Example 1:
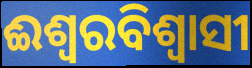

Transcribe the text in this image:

ଈଶ୍ବରବିଶ୍ବାସୀ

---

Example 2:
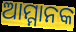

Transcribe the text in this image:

ଆମ୍ମାନକ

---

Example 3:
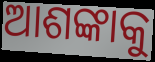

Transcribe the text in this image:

ଆଶଙ୍କାକୁ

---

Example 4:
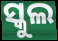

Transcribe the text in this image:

ସ୍କୁଲ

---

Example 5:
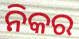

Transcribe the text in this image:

ନିକର